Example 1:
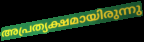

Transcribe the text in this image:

അപ്രത്യക്ഷമായിരുന്നു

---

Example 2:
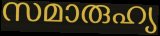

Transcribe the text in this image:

സമാരുഹ്യ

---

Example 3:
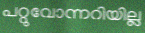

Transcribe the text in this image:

പറ്റുവോന്നറിയില്ല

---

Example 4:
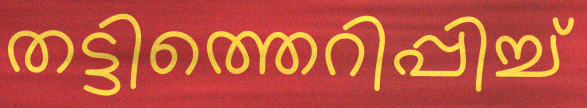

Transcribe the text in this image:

തട്ടിത്തെറിപ്പിച്ച്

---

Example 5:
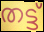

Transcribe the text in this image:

തട്ട്